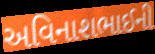
અવિનાશભાઈની